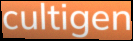
cultigen